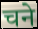
चने